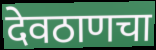
देवठाणचा